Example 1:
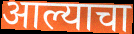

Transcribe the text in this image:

आल्‍याचा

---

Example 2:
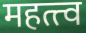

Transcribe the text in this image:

महत्‍त्‍व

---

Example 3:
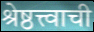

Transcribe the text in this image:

श्रेष्ठत्त्वाची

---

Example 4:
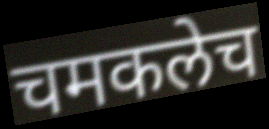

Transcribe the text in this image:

चमकलेच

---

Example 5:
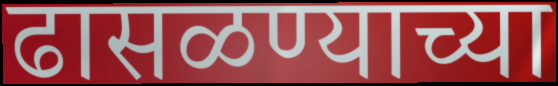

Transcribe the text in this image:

ढासळण्याच्या